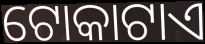
ଟୋକାଟାଏ